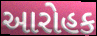
આરોહક